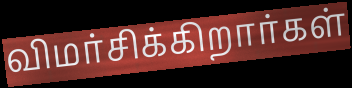
விமர்சிக்கிறார்கள்